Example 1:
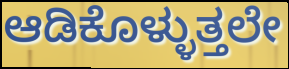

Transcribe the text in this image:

ಆಡಿಕೊಳ್ಳುತ್ತಲೇ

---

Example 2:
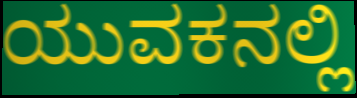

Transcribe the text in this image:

ಯುವಕನಲ್ಲಿ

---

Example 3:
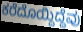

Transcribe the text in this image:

ಕರೆದೊಯ್ದಿದ್ದೆವು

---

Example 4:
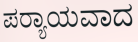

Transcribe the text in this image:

ಪರ‍್ಯಾಯವಾದ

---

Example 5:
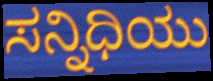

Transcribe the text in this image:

ಸನ್ನಿಧಿಯು